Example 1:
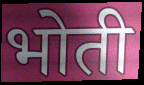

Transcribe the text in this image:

भोती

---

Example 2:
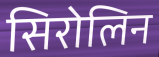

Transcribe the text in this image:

सिरोलिन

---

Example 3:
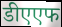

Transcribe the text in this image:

डीएएफ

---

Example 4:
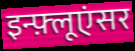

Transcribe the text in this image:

इन्फ़्लूएंसर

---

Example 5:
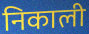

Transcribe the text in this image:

निकाली